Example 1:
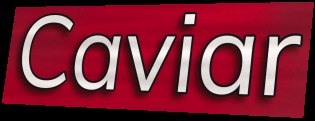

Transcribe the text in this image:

Caviar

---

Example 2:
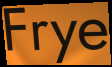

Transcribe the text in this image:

Frye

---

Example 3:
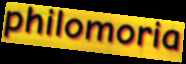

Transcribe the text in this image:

philomoria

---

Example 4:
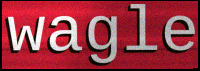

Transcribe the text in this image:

wagle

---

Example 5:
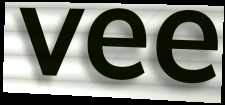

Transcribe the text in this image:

vee